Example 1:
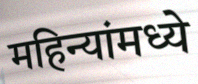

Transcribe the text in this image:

महिन्यांमध्ये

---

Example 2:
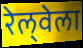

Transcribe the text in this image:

रेल्वेला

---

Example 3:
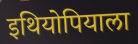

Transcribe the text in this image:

इथियोपियाला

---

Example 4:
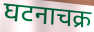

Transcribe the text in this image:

घटनाचक्र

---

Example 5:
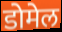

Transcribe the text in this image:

डोमेल